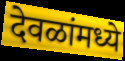
देवळांमध्ये